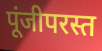
पूंजीपरस्त